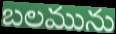
బలమును